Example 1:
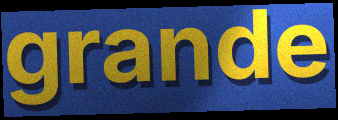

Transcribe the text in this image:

grande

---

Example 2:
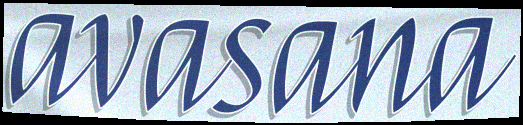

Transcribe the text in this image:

avasana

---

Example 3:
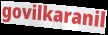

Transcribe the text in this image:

govilkaranil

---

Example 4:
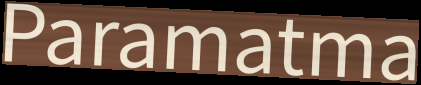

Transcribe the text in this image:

Paramatma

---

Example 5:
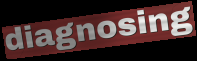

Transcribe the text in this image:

diagnosing